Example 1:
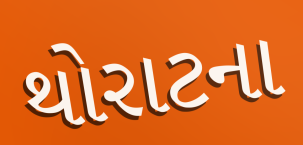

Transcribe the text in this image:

થોરાટના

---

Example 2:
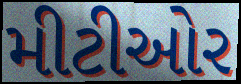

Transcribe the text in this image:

મીટીઓર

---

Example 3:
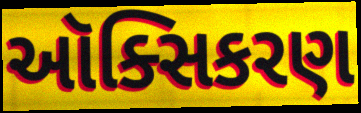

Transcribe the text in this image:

ઑક્સિકરણ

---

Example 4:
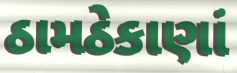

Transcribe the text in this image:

ઠામઠેકાણાં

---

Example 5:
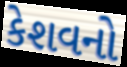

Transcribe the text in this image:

કેશવનો